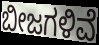
ಬೀಜಗಳಿವೆ